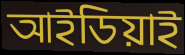
আইডিয়াই